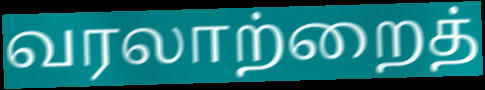
வரலாற்றைத்